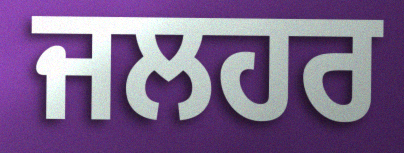
ਜਲਹਰ